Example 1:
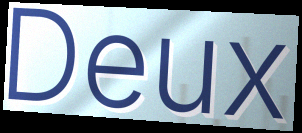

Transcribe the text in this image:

Deux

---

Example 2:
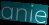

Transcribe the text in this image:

anie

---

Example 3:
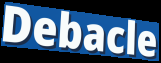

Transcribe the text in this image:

Debacle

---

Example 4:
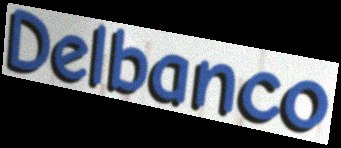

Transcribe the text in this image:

Delbanco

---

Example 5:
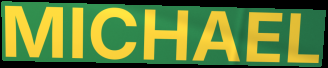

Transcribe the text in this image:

MICHAEL